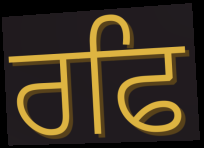
ਰਫਿ